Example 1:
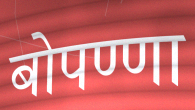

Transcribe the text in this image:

बोपण्णा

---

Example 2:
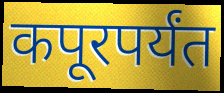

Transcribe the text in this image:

कपूरपर्यंत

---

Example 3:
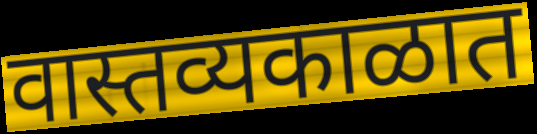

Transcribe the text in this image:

वास्तव्यकाळात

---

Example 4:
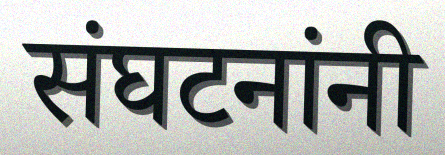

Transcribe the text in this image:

संघटनांनी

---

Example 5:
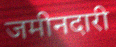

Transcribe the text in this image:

जमीनदारी